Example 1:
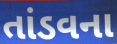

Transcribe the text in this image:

તાંડવના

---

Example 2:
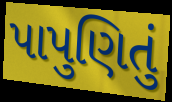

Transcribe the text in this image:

પાપુણિતું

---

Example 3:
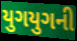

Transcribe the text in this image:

યુગયુગની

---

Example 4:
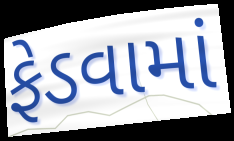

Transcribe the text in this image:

ફેડવામાં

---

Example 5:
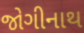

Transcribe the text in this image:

જોગીનાથ